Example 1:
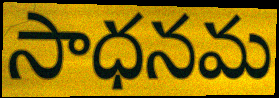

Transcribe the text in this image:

సాధనమ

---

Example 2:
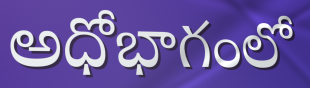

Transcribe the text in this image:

అధోభాగంలో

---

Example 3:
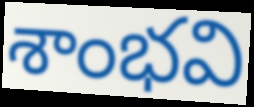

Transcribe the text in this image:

శాంభవి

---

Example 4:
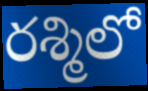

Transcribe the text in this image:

రశ్మిలో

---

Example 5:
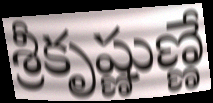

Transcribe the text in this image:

శ్రీకృష్ణుణ్ణే